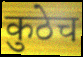
कुठेच